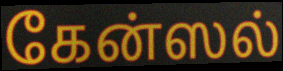
கேன்ஸல்